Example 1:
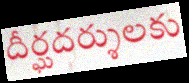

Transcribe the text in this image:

దీర్ఘదర్శులకు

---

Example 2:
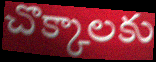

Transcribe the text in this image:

చొక్కాలకు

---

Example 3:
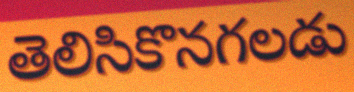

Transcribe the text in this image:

తెలిసికొనగలడు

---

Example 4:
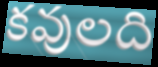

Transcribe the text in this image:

కవులది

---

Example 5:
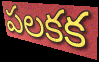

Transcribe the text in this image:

పలకక